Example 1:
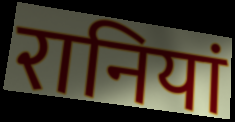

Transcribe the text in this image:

रानियां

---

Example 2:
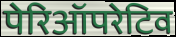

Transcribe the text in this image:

पेरिऑपरेटिव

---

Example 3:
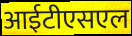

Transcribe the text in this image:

आईटीएसएल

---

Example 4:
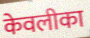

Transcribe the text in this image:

केवलीका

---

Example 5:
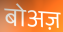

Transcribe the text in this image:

बोअज़